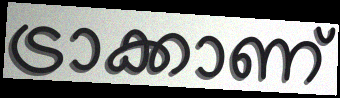
ട്രാക്കാണ്